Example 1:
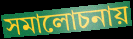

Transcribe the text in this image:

সমালোচনায়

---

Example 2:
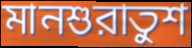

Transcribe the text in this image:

মানশুরাতুশ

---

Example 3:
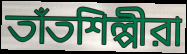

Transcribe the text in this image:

তাঁতশিল্পীরা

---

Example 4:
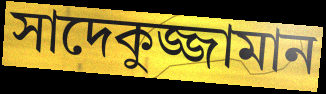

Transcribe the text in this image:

সাদেকুজ্জামান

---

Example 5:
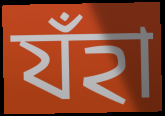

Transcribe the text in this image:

যঁহা